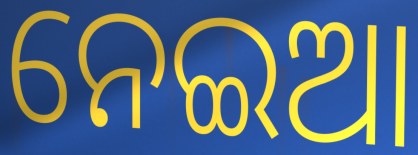
ନେଇଆ